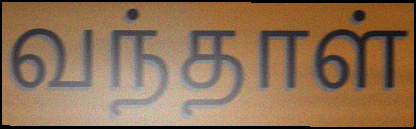
வந்தாள்